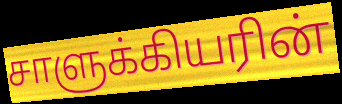
சாளுக்கியரின்